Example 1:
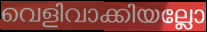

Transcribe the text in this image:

വെളിവാക്കിയല്ലോ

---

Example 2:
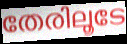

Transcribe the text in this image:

തേരിലൂടേ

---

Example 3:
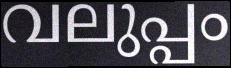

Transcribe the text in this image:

വലുപ്പം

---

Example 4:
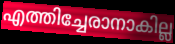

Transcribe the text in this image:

എത്തിച്ചേരാനാകില്ല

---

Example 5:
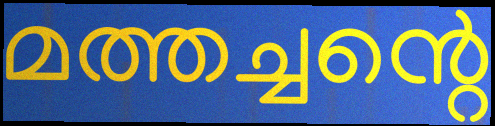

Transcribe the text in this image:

മത്തച്ചന്റെ